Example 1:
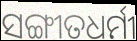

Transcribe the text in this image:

ସଙ୍ଗୀତଧର୍ମୀ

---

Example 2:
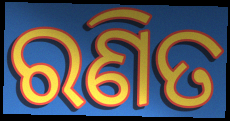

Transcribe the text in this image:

ରଣିତ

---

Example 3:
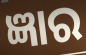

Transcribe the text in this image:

ଜ୍ଞାର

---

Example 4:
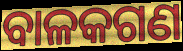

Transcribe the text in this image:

ବାଳକଗଣ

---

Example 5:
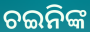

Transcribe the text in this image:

ଚଇନିଙ୍କ